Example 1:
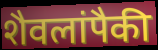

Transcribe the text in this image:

शैवलांपैकी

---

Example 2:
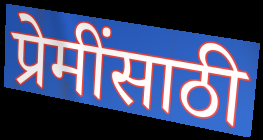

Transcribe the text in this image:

प्रेमींसाठी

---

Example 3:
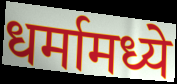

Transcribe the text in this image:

धर्मामध्ये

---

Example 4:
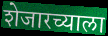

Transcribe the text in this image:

शेजारच्याला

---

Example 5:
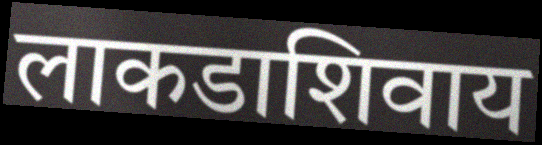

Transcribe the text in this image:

लाकडाशिवाय